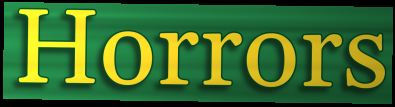
Horrors